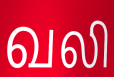
வலி